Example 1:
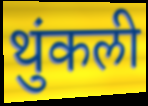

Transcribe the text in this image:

थुंकली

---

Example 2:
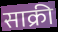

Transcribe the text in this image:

साक्री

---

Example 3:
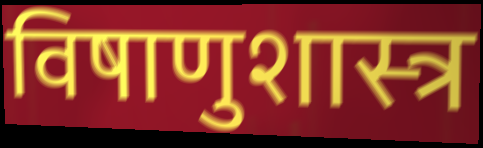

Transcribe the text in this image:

विषाणुशास्त्र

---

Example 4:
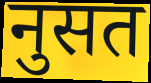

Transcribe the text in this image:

नुसत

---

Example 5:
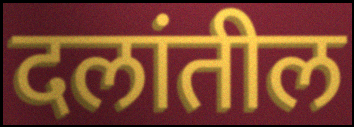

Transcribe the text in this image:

दलांतील